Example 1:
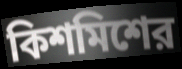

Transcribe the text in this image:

কিশমিশের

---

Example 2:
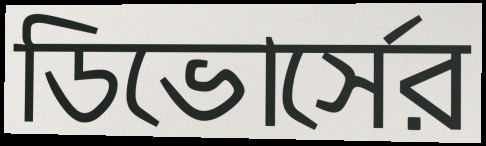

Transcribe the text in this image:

ডিভোর্সের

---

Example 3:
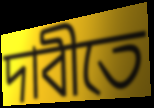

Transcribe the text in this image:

দাবীতে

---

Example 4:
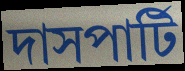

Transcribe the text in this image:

দাসপার্টি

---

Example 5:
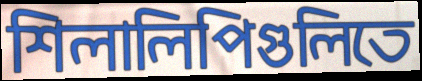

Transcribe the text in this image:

শিলালিপিগুলিতে